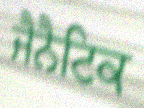
ਜੈਨੈਟਿਕ